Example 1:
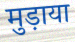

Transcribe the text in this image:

मुड़ाया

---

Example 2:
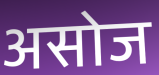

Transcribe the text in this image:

असोज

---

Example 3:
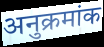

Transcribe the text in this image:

अनुक्रमांक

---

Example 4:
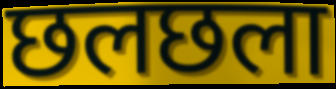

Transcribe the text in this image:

छलछला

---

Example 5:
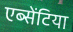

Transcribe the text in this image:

एब्सेंटिया